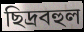
ছিদ্রবহুল